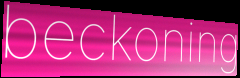
beckoning